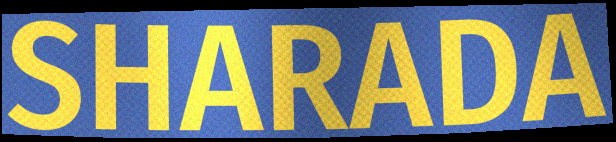
SHARADA